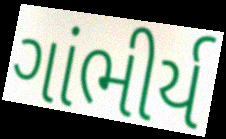
ગાંભીર્ય